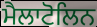
ਮੈਲਾਟੋਲਿਨ